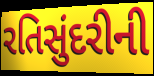
રતિસુંદરીની